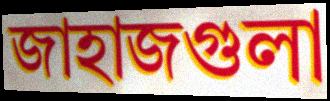
জাহাজগুলা